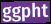
ggpht